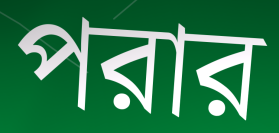
পরার